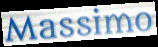
Massimo